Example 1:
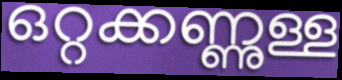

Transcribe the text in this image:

ഒറ്റക്കണ്ണുള്ള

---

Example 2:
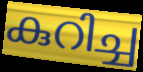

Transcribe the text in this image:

കുറിച്ച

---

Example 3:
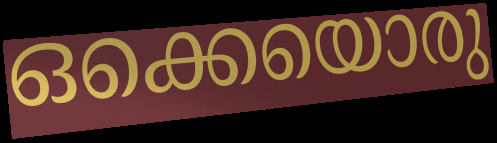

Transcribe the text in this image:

ഒക്കെയൊരു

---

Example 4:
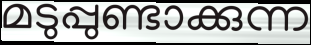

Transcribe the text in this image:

മടുപ്പുണ്ടാക്കുന്ന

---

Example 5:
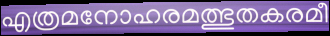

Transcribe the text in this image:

എത്രമനോഹരമത്ഭുതകരമീ